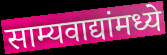
साम्यवाद्यांमध्ये